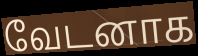
வேடனாக